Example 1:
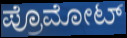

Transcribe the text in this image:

ಪ್ರೊಮೋಟ್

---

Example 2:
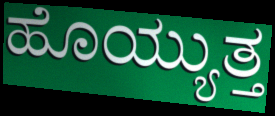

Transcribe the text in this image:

ಹೊಯ್ಯುತ್ತ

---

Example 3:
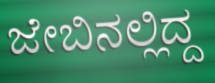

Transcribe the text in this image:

ಜೇಬಿನಲ್ಲಿದ್ದ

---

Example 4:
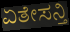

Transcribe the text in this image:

ಏತೇಸನ್ತಿ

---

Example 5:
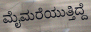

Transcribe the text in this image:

ಮೈಮರೆಯುತ್ತಿದ್ದೆ